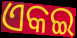
ଏକଇ